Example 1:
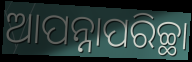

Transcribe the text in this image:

ଆପନ୍ନାପରିଚ୍ଛା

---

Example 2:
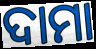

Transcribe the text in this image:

ଦାମା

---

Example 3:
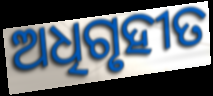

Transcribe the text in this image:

ଅଧିଗୃହୀତ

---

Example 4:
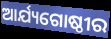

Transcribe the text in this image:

ଆର୍ଯ୍ୟଗୋଷ୍ଠୀର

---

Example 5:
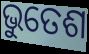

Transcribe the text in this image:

ଭୁତେଶ